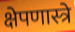
क्षेपणास्त्रे